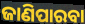
ଜାଣିପାରବା